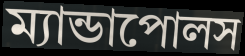
ম্যান্ডাপোলস